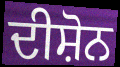
ਦੀਸ਼ੋਨ